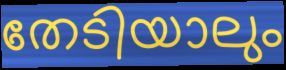
തേടിയാലും